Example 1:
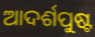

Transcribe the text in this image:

ଆଦର୍ଶପୁଷ୍ଟ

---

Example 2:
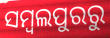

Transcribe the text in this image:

ସମ୍ବଲପୁରରୁ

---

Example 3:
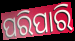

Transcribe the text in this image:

ପରିପାରି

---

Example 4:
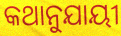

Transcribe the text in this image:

କଥାନୁଯାୟୀ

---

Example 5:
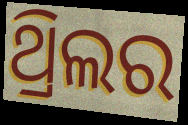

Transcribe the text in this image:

ଥ୍ରିଲର